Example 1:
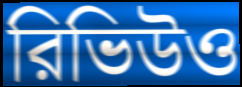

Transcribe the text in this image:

রিভিউও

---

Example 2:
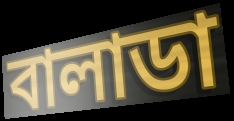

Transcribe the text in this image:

বালাডা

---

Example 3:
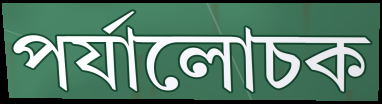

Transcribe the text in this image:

পর্যালোচক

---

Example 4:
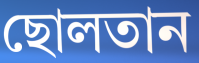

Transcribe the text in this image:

ছোলতান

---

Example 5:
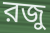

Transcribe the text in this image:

রজু